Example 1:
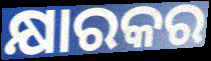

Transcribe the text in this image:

କ୍ଷାରକର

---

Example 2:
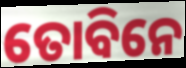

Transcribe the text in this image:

ତୋବିନେ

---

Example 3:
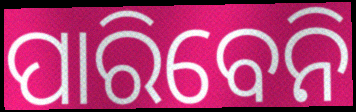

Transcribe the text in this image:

ପାରିବେନି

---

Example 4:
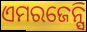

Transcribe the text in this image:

ଏମରଜେନ୍ସି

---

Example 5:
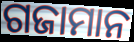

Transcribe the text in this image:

ଗଜାମାନ